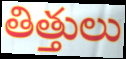
తిత్తులు